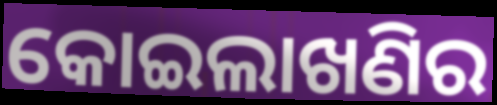
କୋଇଲାଖଣିର